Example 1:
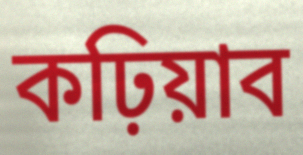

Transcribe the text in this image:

কঢ়িয়াব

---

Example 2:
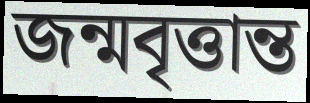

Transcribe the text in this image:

জন্মবৃত্তান্ত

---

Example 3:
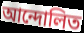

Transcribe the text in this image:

আন্দোলিত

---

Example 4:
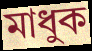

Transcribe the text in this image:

মাধুক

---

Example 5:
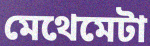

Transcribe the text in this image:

মেথেমেটা